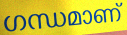
ഗന്ധമാണ്